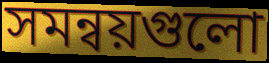
সমন্বয়গুলো